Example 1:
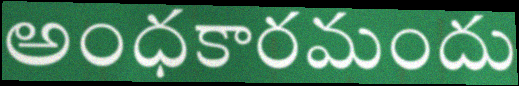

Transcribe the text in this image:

అంధకారమందు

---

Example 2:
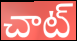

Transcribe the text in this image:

చాట్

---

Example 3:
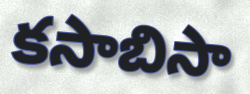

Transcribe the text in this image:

కసాబిసా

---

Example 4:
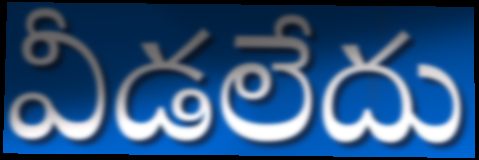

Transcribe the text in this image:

వీడలేదు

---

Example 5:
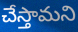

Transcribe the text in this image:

చేస్తామని